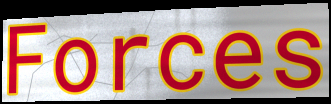
Forces